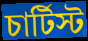
চার্টিস্ট